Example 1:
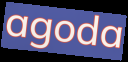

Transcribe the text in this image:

agoda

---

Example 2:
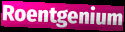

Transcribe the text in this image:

Roentgenium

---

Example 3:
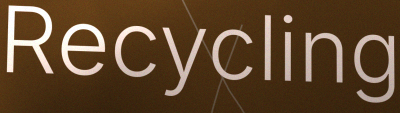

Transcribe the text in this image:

Recycling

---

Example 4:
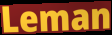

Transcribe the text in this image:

Leman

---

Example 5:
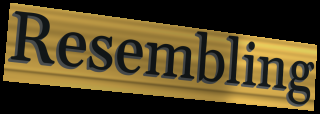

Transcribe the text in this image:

Resembling